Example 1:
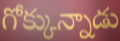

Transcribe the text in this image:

గోక్కున్నాడు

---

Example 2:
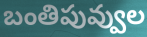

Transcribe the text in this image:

బంతిపువ్వుల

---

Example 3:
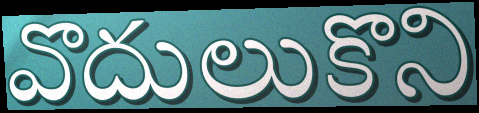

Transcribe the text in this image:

వొదులుకొని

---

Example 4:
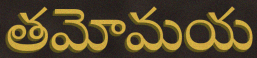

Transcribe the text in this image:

తమోమయ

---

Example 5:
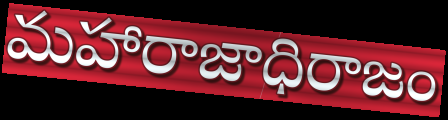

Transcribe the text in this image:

మహారాజాధిరాజం